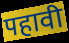
पहावी